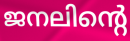
ജനലിന്റെ